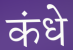
कंधे